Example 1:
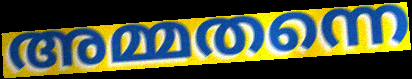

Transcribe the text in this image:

അമ്മതന്നെ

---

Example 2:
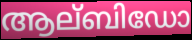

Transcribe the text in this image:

ആല്ബിഡോ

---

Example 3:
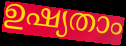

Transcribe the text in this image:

ഉഷ്യതാം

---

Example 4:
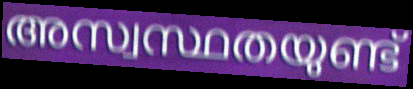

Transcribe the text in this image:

അസ്വസ്ഥതയുണ്ട്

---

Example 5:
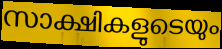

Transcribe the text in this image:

സാക്ഷികളുടെയും